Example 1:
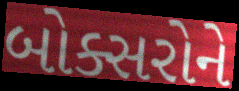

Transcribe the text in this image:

બોક્સરોને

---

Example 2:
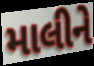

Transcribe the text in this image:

માલીને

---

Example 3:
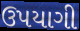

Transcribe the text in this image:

ઉપયાગી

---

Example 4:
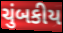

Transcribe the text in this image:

ચુંબકીય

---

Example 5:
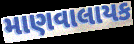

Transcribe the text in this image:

માણવાલાયક